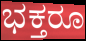
ಭಕ್ತರೂ